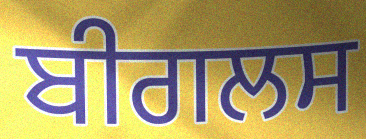
ਬੀਗਲਸ